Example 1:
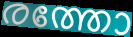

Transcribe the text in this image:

രത്തോ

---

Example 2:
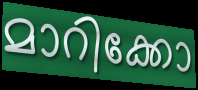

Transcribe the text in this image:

മാറിക്കോ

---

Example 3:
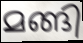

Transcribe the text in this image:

മങ്ങി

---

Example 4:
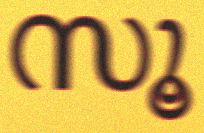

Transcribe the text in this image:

സൂ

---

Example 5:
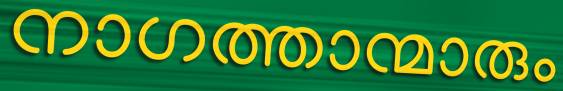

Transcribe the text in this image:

നാഗത്താന്മാരും